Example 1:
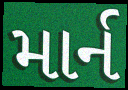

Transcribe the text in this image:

માર્ન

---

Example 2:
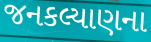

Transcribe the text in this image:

જનકલ્યાણના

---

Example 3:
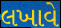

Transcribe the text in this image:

લખાવે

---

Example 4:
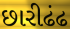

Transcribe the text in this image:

છારીઢંઢ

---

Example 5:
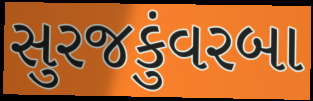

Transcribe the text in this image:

સુરજકુંવરબા